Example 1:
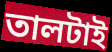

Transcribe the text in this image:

তালটাই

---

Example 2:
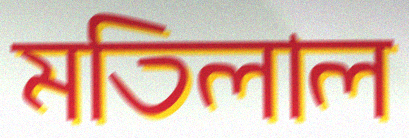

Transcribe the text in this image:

মতিলাল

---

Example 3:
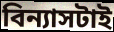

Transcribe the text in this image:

বিন্যাসটাই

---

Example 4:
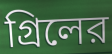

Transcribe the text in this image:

গ্রিলের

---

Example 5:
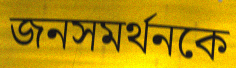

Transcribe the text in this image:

জনসমর্থনকে